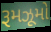
રૂમઝૂમો